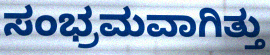
ಸಂಭ್ರಮವಾಗಿತ್ತು